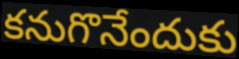
కనుగొనేందుకు